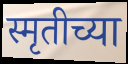
स्मृतीच्या